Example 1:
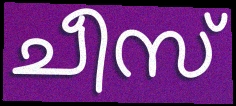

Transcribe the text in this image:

ചീസ്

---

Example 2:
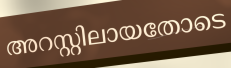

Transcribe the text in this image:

അറസ്റ്റിലായതോടെ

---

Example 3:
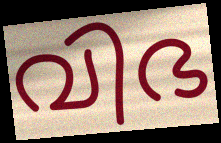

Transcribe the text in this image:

വിഭ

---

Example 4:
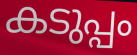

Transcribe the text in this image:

കടുപ്പം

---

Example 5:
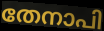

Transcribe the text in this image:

തേനാപി